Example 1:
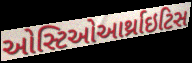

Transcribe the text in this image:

ઓસ્ટિઓઆર્થ્રાઇટિસ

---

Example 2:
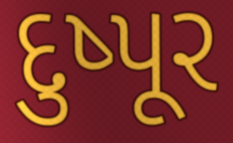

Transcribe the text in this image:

દુષ્પૂર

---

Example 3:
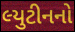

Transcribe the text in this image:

લ્યુટીનનો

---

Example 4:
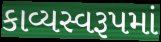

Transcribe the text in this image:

કાવ્યસ્વરૂપમાં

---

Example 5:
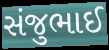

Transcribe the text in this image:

સંજુભાઈ